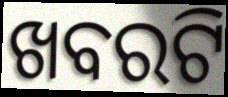
ଖବରଟି